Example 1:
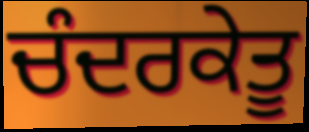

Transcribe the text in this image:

ਚੰਦਰਕੇਤੂ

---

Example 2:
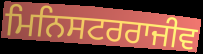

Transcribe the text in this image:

ਮਿਨਿਸਟਰਰਾਜੀਵ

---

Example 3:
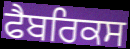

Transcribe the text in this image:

ਫੈਬਰਿਕਸ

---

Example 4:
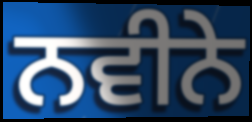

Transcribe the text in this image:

ਨਵੀਨੇ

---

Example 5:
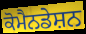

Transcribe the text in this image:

ਕੋਮੈਨਡੇਸ਼ਨ